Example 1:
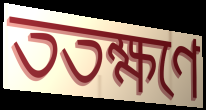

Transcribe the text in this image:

ততক্ষণে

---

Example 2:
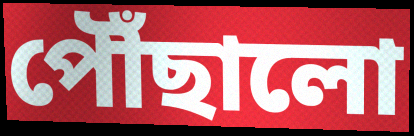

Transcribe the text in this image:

পৌঁছালো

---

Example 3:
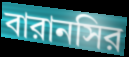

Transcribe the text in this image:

বারানসির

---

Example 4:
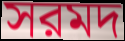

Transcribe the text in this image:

সরমদ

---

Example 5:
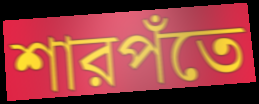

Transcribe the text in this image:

শারপঁতে